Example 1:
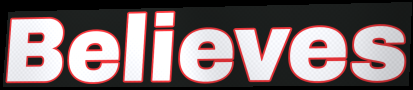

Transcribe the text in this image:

Believes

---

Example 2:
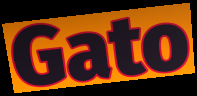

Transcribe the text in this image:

Gato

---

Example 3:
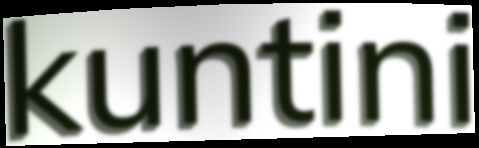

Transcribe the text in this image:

kuntini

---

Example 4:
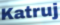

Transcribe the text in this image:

Katruj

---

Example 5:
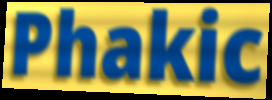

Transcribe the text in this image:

Phakic